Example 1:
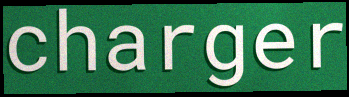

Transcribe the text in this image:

charger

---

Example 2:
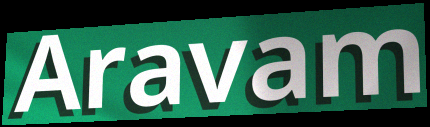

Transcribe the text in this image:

Aravam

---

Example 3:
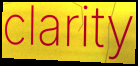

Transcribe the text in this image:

clarity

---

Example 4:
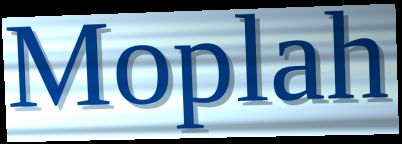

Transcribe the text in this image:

Moplah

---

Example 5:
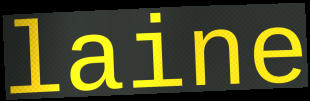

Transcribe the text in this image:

laine